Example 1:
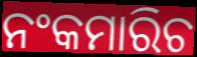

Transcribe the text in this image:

ନଂକମାରିଚ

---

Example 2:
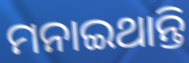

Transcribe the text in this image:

ମନାଇଥାନ୍ତି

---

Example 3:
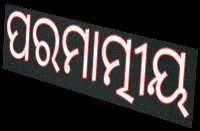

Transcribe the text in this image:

ପରମାତ୍ମୀୟ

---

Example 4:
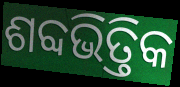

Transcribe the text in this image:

ଶବ୍ଦଭିତ୍ତିକ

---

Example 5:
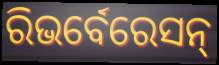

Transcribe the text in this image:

ରିଭର୍ବେରେସନ୍